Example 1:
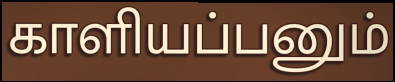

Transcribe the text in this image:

காளியப்பனும்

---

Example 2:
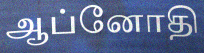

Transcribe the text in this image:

ஆப்னோதி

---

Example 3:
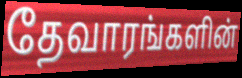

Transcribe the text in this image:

தேவாரங்களின்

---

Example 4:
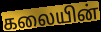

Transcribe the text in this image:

கலையின்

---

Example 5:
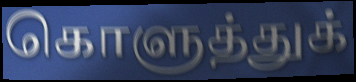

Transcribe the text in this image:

கொளுத்துக்